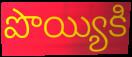
పొయ్యికి